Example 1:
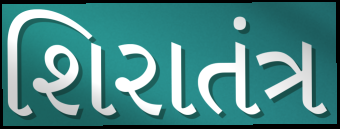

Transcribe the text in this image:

શિરાતંત્ર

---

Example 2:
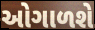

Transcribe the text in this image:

ઓગાળશે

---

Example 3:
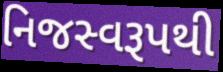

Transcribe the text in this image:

નિજસ્વરૂપથી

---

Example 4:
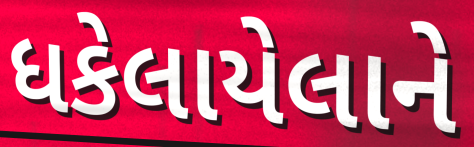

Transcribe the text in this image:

ધકેલાયેલાને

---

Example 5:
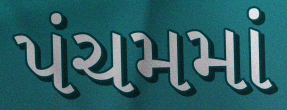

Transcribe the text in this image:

પંચમમાં